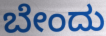
ಬೇಂದು